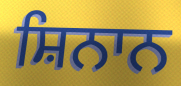
ਸ਼ਿਨਾਨ